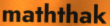
maththak